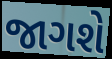
જાગશે